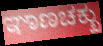
ಞಾಣಚಕ್ಖು